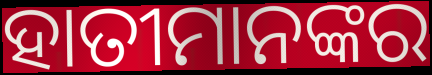
ହାତୀମାନଙ୍କର